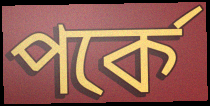
পর্কে